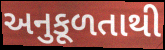
અનુકૂળતાથી